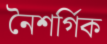
নৈশৰ্গিক